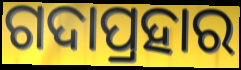
ଗଦାପ୍ରହାର